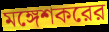
মঙ্গেশকরের